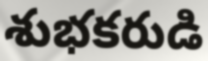
శుభకరుడి